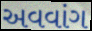
અવવાંગ